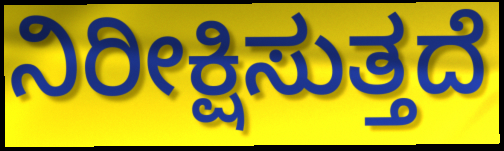
ನಿರೀಕ್ಷಿಸುತ್ತದೆ